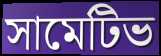
সামেটিভ